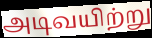
அடிவயிற்று